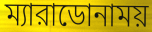
ম্যারাডোনাময়